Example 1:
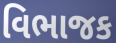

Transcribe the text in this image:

વિભાજક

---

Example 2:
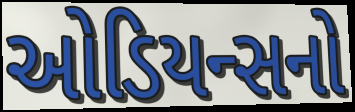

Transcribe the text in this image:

ઓડિયન્સનો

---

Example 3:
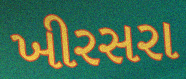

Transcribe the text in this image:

ખીરસરા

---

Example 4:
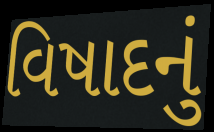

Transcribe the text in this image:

વિષાદનું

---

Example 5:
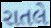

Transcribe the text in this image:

રાતલે